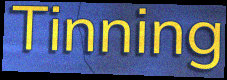
Tinning